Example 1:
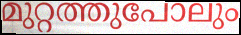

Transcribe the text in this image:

മുറ്റത്തുപോലും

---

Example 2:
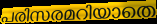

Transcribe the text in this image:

പരിസരമറിയാതെ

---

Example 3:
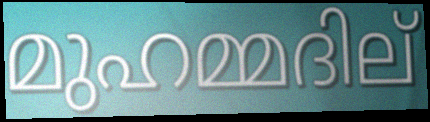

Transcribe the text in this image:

മുഹമ്മദില്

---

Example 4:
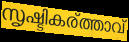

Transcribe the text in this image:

സൃഷ്ടികര്ത്താവ്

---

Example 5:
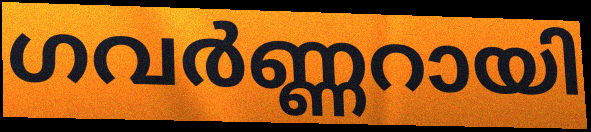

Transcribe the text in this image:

ഗവർണ്ണറായി